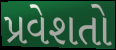
પ્રવેશતો